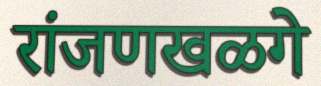
रांजणखळगे